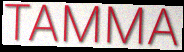
TAMMA